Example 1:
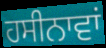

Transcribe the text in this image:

ਹਸੀਨਾਵਾਂ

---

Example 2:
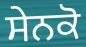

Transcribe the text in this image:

ਸੇਨਕੋ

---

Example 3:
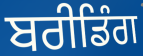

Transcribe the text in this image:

ਬਰੀਡਿੰਗ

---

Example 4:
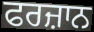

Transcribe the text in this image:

ਫਰਜ਼ਾਨ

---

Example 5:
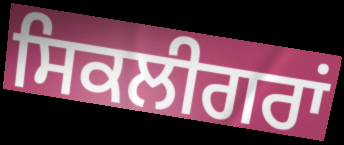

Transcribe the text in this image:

ਸਿਕਲੀਗਰਾਂ